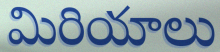
మిరియాలు